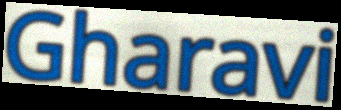
Gharavi